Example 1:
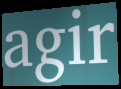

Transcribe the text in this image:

agir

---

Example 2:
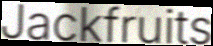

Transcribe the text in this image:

Jackfruits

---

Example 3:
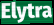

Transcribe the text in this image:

Elytra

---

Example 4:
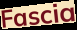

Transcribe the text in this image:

Fascia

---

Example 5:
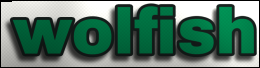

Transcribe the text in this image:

wolfish